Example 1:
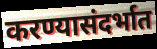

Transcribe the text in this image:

करण्यासंदर्भात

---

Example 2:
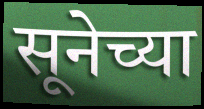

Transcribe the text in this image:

सूनेच्या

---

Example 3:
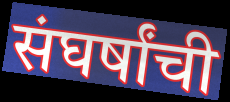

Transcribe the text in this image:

संघर्षांची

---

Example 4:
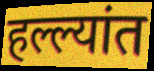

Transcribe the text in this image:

हल्ल्यांत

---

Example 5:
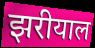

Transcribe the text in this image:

झरीयाल